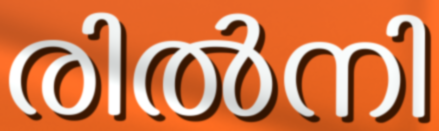
രിൽനി